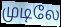
முடிலே